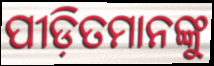
ପୀଡ଼ିତମାନଙ୍କୁ